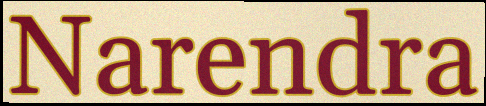
Narendra